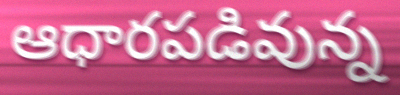
ఆధారపడివున్న